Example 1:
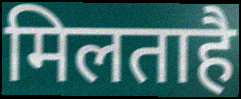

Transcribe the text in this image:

मिलताहै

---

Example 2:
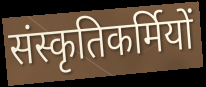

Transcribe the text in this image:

संस्कृतिकर्मियों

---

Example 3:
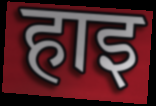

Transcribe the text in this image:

हाइ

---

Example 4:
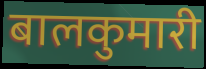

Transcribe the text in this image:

बालकुमारी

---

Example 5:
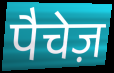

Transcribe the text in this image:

पैचेज़